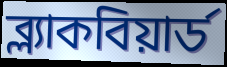
ব্ল্যাকবিয়ার্ড